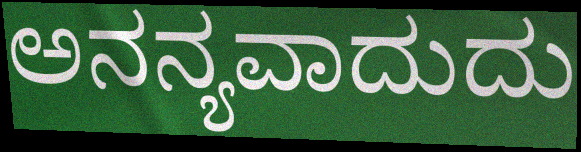
ಅನನ್ಯವಾದುದು